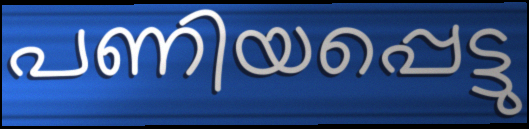
പണിയപ്പെട്ടു